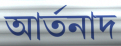
আর্তনাদ